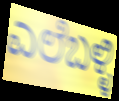
ಎಲೆಬಳ್ಳಿ